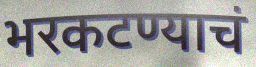
भरकटण्याचं